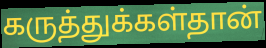
கருத்துக்கள்தான்